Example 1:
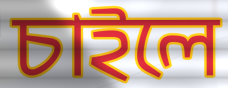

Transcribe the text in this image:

চাইলে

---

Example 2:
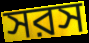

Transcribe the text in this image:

সরস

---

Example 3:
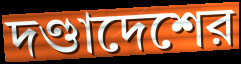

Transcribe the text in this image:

দণ্ডাদেশের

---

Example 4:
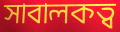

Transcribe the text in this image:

সাবালকত্ব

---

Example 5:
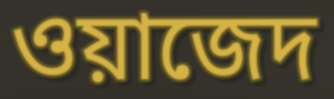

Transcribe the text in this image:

ওয়াজেদ